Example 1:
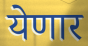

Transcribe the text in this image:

येणार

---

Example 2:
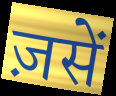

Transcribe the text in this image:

ज़सें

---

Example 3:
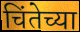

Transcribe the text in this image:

चिंतेच्या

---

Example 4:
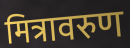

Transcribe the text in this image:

मित्रावरुण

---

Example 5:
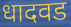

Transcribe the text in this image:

धादवड